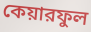
কেয়ারফুল